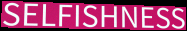
SELFISHNESS